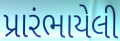
પ્રારંભાયેલી